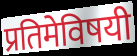
प्रतिमेविषयी